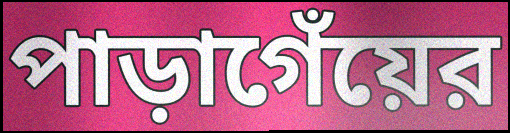
পাড়াগেঁয়ের